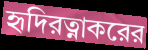
হৃদিরত্নাকরের